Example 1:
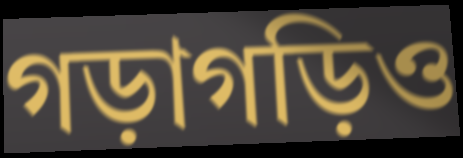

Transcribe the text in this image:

গড়াগড়িও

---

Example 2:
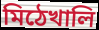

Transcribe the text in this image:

মিঠেখালি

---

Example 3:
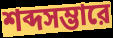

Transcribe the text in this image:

শব্দসম্ভারে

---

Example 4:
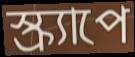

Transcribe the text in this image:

স্ক্র্যাপে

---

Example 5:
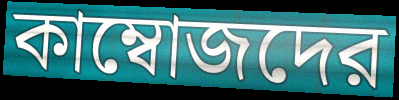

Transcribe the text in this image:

কাম্বোজদের